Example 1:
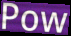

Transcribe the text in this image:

Pow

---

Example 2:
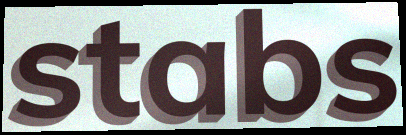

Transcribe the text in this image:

stabs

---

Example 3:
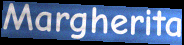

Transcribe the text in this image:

Margherita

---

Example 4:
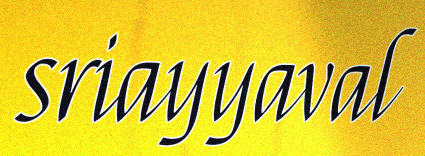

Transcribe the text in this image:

sriayyaval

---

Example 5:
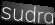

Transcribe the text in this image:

sudra